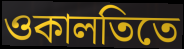
ওকালতিতে